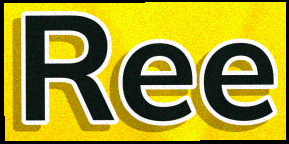
Ree